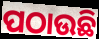
ପଠାଉଛି